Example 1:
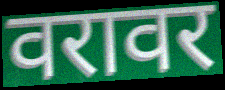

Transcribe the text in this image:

वरावर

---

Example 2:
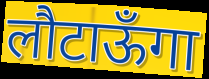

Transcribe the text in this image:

लौटाऊँगा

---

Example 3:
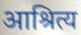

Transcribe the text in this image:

आश्रित्य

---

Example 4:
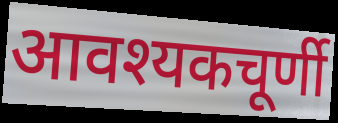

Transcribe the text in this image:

आवश्यकचूर्णी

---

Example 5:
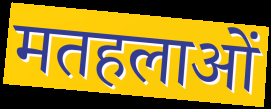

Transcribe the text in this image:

मतहलाओं